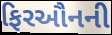
ફિરઔનની